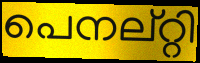
പെനല്റ്റി